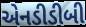
એનડીડીબી